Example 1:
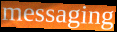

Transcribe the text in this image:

messaging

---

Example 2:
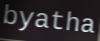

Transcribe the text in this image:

byatha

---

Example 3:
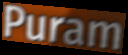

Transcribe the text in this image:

Puram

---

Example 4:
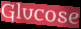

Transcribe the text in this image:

Glucose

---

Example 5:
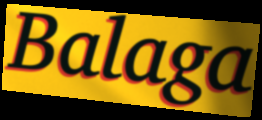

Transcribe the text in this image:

Balaga